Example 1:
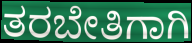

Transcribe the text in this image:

ತರಬೇತಿಗಾಗಿ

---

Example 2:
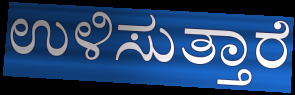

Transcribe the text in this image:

ಉಳಿಸುತ್ತಾರೆ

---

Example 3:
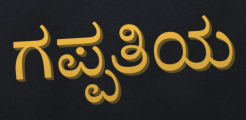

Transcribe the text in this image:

ಗಪ್ಪತಿಯ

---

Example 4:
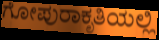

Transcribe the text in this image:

ಗೋಪುರಾಕೃತಿಯಲ್ಲಿ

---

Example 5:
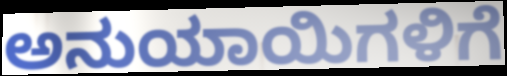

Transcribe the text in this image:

ಅನುಯಾಯಿಗಳಿಗೆ